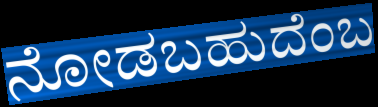
ನೋಡಬಹುದೆಂಬ